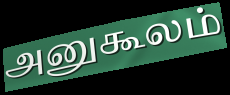
அனுகூலம்